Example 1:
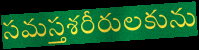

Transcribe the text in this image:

సమస్తశరీరులకును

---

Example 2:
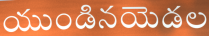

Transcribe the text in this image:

యుండినయెడల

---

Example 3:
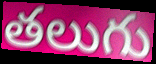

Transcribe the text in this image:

తలుగు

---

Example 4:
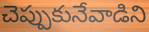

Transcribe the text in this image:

చెప్పుకునేవాడిని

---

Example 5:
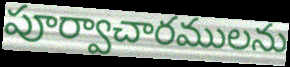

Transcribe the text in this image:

పూర్వాచారములను